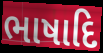
ભાષાદિ